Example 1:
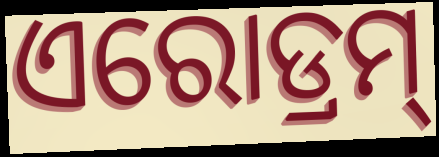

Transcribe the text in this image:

ଏରୋଡ୍ରମ୍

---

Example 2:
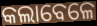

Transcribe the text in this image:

କଲାବେଳେ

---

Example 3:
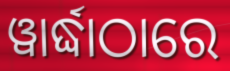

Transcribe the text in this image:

ୱାର୍ଦ୍ଧାଠାରେ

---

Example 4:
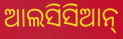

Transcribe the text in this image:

ଆଲସିସିଆନ୍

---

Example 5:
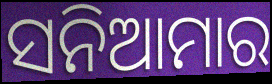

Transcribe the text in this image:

ସନିଆମାର